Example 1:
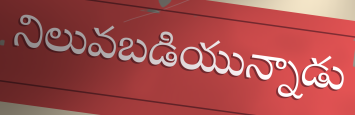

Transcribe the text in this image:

నిలువబడియున్నాడు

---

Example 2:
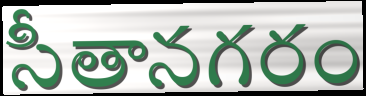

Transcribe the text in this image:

సీతానగరం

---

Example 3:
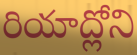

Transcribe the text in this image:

రియాద్లోని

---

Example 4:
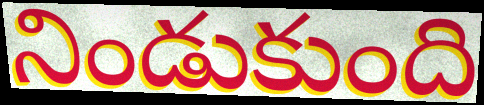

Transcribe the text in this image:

నిండుకుంది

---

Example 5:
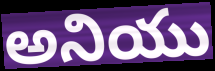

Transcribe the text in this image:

అనియు